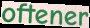
oftener